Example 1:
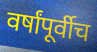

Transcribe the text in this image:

वर्षांपूर्वीच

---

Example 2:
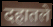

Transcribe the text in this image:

दहातले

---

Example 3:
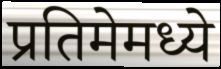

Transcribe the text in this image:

प्रतिमेमध्ये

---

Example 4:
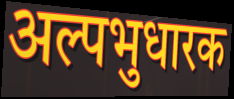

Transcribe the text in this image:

अल्पभुधारक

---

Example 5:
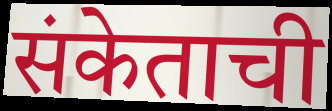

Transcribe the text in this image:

संकेताची